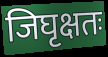
जिघृक्षतः